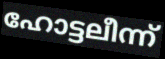
ഹോട്ടലീന്ന്